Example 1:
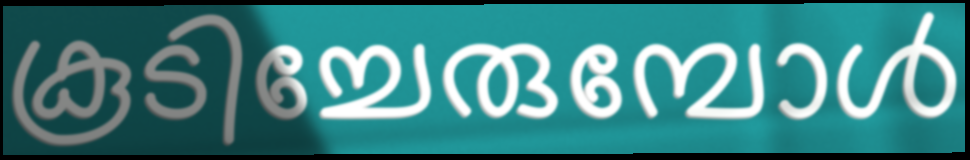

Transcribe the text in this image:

കൂടിച്ചേരുമ്പോൾ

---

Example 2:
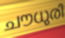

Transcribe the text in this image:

ചൗധുരി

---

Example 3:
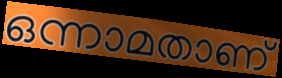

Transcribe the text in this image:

ഒന്നാമതാണ്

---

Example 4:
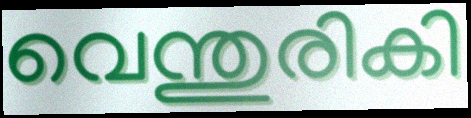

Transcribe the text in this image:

വെന്തുരികി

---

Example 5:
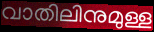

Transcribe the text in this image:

വാതിലിനുമുള്ള